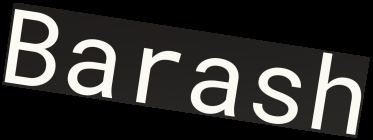
Barash